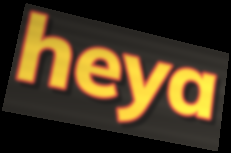
heya